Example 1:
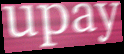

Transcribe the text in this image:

upay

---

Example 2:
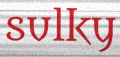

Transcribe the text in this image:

sulky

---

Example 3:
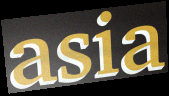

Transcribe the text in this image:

asia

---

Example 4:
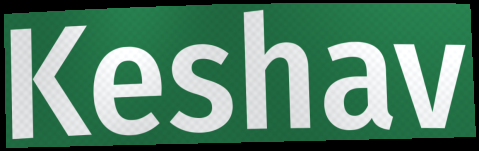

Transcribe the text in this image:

Keshav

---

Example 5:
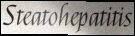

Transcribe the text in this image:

Steatohepatitis